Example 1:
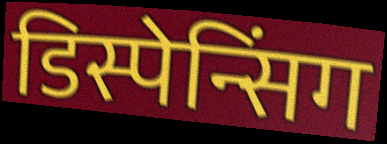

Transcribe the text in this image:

डिस्पेन्सिंग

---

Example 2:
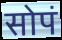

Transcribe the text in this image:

सोपं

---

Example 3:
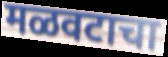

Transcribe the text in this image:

मळवटाचा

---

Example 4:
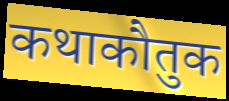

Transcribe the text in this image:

कथाकौतुक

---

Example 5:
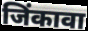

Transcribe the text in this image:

जिंकावा